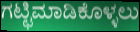
ಗಟ್ಟಿಮಾಡಿಕೊಳ್ಳಲು